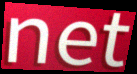
net